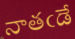
నాతఁడే